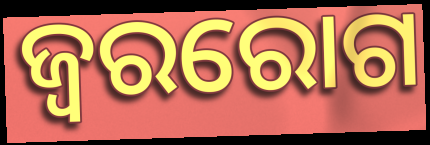
ଜ୍ୱରରୋଗ